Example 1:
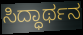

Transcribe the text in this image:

ಸಿದ್ಧಾರ್ಥನ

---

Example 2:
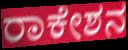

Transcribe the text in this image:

ರಾಕೇಶನ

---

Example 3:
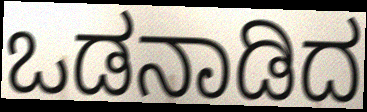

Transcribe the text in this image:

ಒಡನಾಡಿದ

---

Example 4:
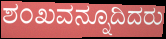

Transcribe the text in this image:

ಶಂಖವನ್ನೂದಿದರು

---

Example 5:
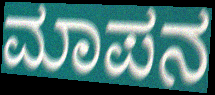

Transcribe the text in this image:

ಮಾಪನ